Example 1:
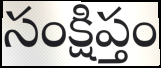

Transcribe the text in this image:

సంక్షిప్తం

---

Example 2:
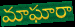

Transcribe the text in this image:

మాఘారా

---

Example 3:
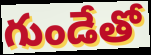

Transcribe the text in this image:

గుండేతో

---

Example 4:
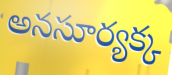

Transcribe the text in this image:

అనసూర్యక్క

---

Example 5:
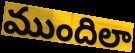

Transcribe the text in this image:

ముందిలా